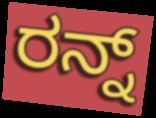
ರನ್ನ್